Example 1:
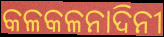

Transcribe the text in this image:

କଳକଳନାଦିନୀ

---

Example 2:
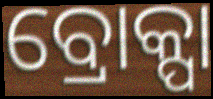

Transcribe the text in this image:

ବ୍ରୋକ୍ପା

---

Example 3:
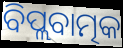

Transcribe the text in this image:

ବିପ୍ଲବାତ୍ମକ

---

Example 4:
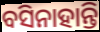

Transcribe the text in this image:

ବସିନାହାନ୍ତି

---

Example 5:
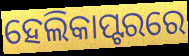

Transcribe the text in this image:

ହେଲିକାପ୍ଟରରେ